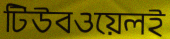
টিউবওয়েলই